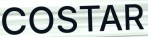
COSTAR